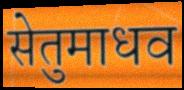
सेतुमाधव